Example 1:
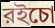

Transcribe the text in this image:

রইচো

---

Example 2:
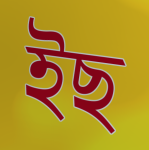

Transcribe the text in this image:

ইছ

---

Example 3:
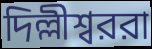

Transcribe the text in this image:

দিল্লীশ্বররা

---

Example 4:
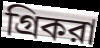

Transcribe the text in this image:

গ্রিকরা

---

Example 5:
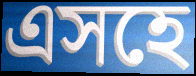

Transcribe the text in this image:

এসহে